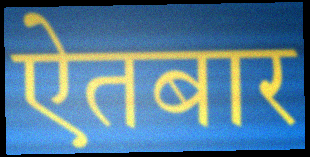
ऐतबार